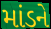
માંડને